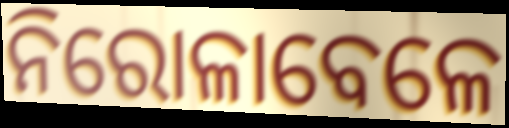
ନିରୋଳାବେଳେ